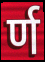
र्ण